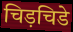
चिड़चिडे